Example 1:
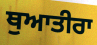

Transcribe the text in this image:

ਥੁਆਤੀਰਾ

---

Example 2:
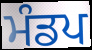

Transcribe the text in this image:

ਮੰਡਪ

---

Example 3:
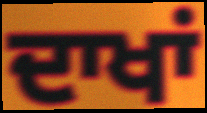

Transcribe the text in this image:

ਦਾਖਾਂ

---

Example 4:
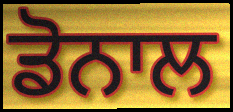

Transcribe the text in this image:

ਡੋਨਾਲ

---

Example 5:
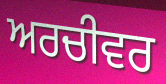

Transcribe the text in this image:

ਅਰਚੀਵਰ